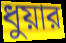
ধুয়ার